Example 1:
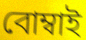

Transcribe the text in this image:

বোম্বাই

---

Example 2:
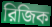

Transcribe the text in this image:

রিজিক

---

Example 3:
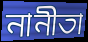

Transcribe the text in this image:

নানীতা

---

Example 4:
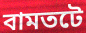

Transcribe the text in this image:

বামতটে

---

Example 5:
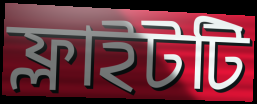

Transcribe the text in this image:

ফ্লাইটটি